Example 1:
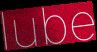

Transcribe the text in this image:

lube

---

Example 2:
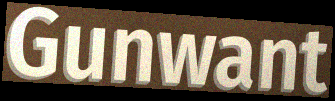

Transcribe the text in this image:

Gunwant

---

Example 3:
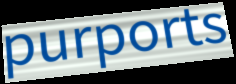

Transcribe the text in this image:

purports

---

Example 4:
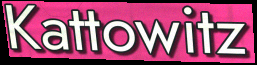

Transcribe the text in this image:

Kattowitz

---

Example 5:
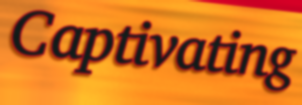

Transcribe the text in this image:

Captivating